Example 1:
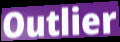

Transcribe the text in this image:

Outlier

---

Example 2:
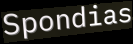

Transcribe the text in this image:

Spondias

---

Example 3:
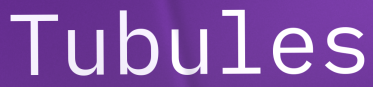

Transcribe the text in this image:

Tubules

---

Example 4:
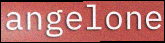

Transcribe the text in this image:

angelone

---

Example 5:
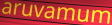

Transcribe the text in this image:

aruvamum